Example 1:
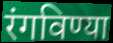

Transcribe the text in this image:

रंगविण्या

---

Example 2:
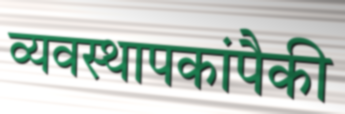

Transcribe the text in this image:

व्यवस्थापकांपैकी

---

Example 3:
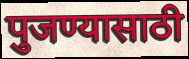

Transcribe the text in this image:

पुजण्यासाठी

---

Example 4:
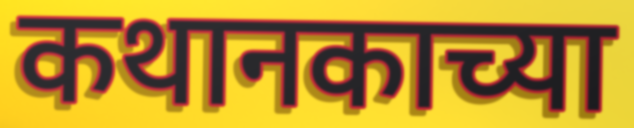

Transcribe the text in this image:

कथानकाच्या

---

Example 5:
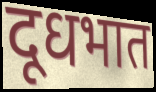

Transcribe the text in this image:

दूधभात